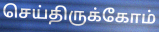
செய்திருக்கோம்